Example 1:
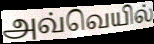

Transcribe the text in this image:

அவ்வெயில்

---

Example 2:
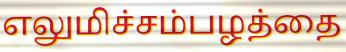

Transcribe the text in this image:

எலுமிச்சம்பழத்தை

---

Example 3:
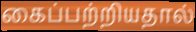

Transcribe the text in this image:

கைப்பற்றியதால்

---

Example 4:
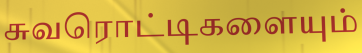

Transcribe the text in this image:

சுவரொட்டிகளையும்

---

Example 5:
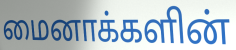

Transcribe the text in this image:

மைனாக்களின்